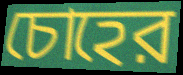
চোহের